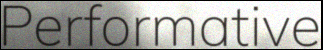
Performative